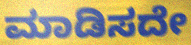
ಮಾಡಿಸದೇ